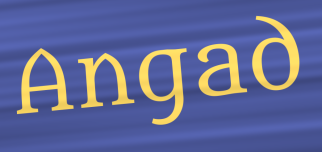
Angad